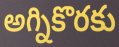
అగ్నికొరకు